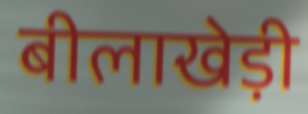
बीलाखेड़ी